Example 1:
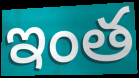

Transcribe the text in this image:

ఇంత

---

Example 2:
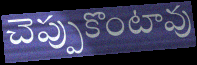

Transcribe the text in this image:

చెప్పుకొంటావు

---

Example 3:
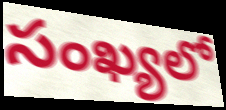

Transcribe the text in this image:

సంఖ్యలో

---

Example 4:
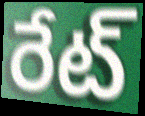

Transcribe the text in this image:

రేట్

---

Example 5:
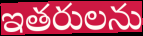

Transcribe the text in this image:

ఇతరులను